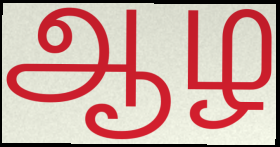
ஆழ